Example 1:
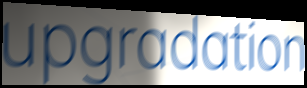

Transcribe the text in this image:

upgradation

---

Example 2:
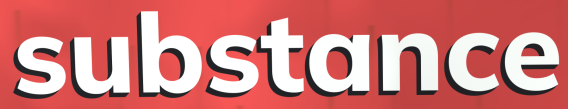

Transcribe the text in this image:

substance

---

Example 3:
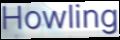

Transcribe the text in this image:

Howling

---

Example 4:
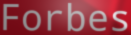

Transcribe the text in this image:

Forbes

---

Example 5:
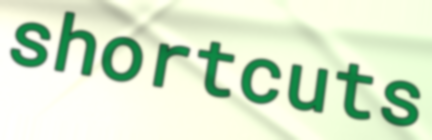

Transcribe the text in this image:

shortcuts